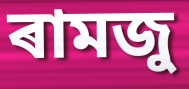
ৰামজু